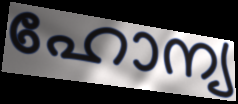
ഹോന്യ